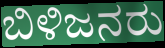
ಬಿಳಿಜನರು